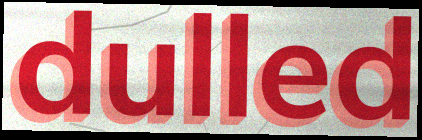
dulled